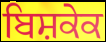
ਬਿਸ਼ਕੇਕ